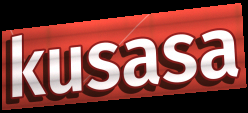
kusasa